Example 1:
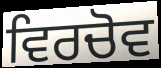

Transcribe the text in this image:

ਵਿਰਚੋਵ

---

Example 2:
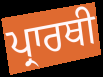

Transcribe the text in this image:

ਪ੍ਰਾਰਥੀ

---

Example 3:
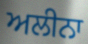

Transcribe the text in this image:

ਅਲੀਨਾ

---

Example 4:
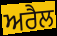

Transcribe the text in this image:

ਅਰੈਲ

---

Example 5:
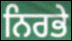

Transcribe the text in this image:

ਨਿਰਭੇ